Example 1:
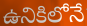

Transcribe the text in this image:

ఉనికిలోనే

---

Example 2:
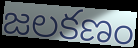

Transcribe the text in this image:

జలకణం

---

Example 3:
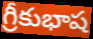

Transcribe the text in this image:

గ్రీకుభాష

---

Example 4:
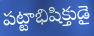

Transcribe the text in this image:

పట్టాభిషిక్తుడై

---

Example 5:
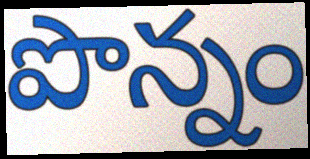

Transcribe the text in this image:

పొన్నం